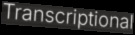
Transcriptional